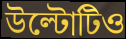
উল্টোটিও